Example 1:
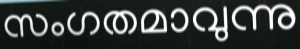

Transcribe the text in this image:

സംഗതമാവുന്നു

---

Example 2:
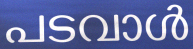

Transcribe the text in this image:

പടവാൾ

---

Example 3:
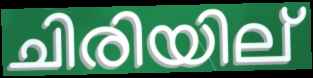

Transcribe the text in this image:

ചിരിയില്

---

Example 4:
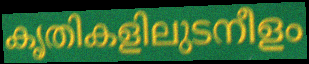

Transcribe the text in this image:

കൃതികളിലുടനീളം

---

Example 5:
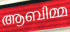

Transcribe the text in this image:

ആബിമ്മ